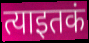
त्याइतकं